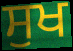
ਸੁਖ